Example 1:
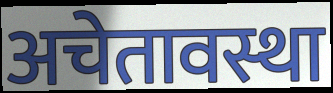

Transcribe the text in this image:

अचेतावस्था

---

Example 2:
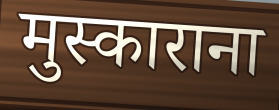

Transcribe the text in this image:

मुस्काराना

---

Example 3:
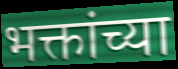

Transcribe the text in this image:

भक्तांच्या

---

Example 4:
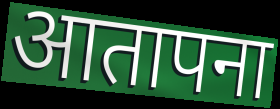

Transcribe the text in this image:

आतापना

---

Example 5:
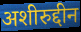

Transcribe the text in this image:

अशीरुद्दीन